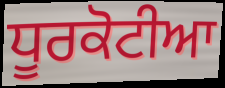
ਧੂਰਕੋਟੀਆ